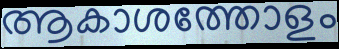
ആകാശത്തോളം